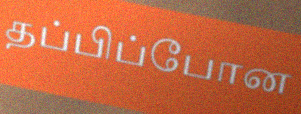
தப்பிப்போன